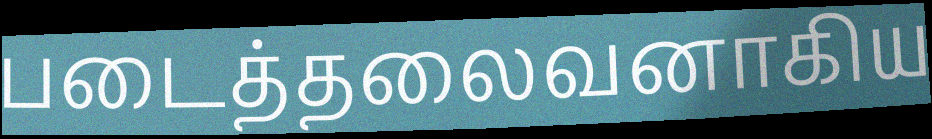
படைத்தலைவனாகிய